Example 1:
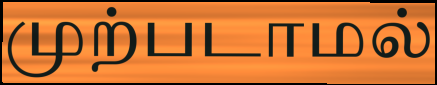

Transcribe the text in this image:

முற்படாமல்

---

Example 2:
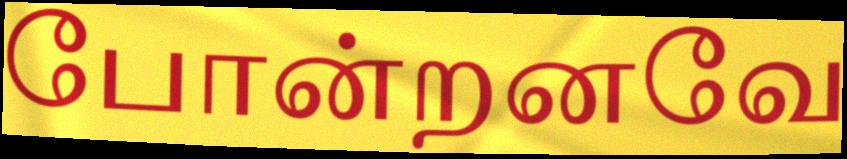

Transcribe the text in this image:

போன்றனவே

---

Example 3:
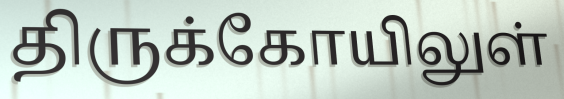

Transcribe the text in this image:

திருக்கோயிலுள்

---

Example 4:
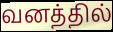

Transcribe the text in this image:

வனத்தில்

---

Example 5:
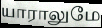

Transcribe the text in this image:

யாராலுமே